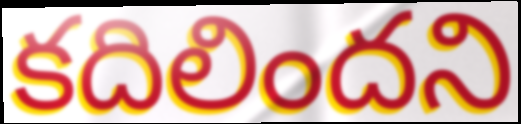
కదిలిందని